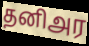
தனிஅர